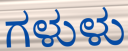
ಗಳುಳು